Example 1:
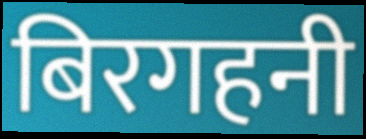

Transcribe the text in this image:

बिरगहनी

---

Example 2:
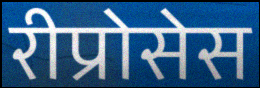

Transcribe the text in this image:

रीप्रोसेस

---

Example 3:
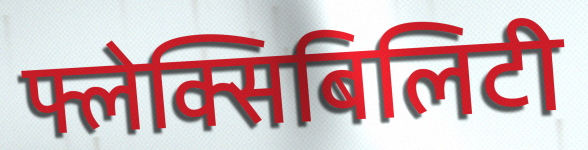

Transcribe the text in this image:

फ्लेक्सिबिलिटी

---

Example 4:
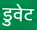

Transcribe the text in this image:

डुवेट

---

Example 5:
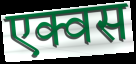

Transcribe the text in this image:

एक्वस